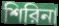
শিরিনা